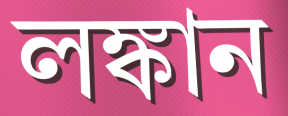
লঙ্কান